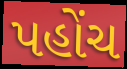
પહોંચ